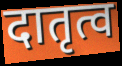
दातृत्व